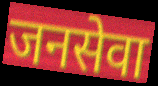
जनसेवा